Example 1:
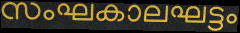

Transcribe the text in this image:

സംഘകാലഘട്ടം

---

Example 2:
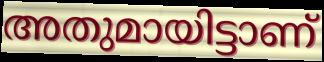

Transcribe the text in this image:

അതുമായിട്ടാണ്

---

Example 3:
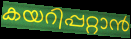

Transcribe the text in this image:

കയറിപ്പറ്റാൻ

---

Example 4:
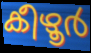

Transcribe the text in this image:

കീഴൂർ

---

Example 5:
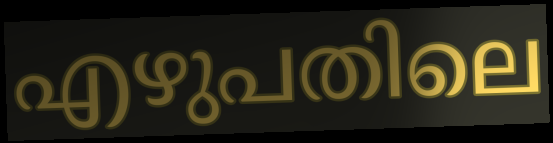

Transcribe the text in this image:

എഴുപതിലെ